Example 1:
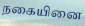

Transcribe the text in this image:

நகையினை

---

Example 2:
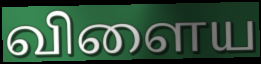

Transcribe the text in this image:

விளைய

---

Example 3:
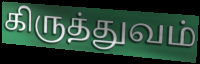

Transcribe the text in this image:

கிருத்துவம்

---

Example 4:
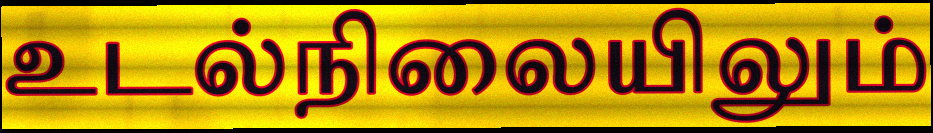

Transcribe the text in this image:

உடல்நிலையிலும்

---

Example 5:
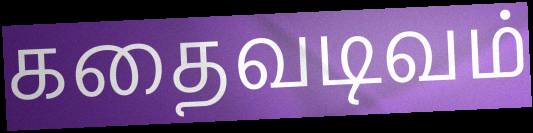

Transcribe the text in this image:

கதைவடிவம்